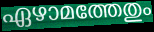
ഏഴാമത്തേതും